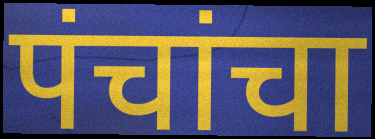
पंचांचा